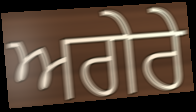
ਅਗੇਰੇ